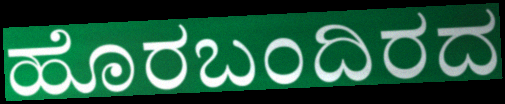
ಹೊರಬಂದಿರದ